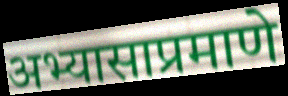
अभ्यासाप्रमाणे